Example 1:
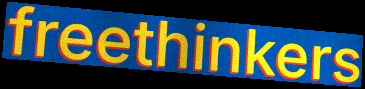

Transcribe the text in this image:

freethinkers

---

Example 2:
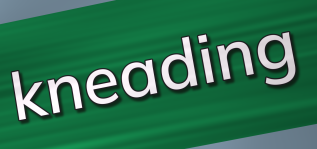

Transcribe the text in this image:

kneading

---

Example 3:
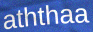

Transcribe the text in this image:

aththaa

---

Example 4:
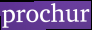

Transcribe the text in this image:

prochur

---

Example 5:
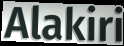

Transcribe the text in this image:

Alakiri